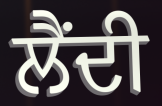
ਲੈਂਦੀ